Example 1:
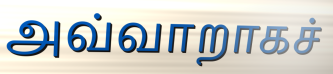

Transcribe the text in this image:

அவ்வாறாகச்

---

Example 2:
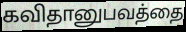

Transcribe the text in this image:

கவிதானுபவத்தை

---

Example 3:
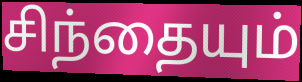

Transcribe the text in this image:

சிந்தையும்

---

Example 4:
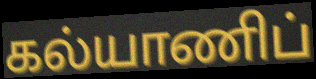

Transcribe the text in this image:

கல்யாணிப்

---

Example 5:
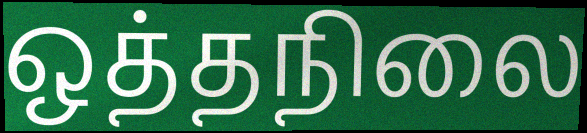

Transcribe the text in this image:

ஒத்தநிலை